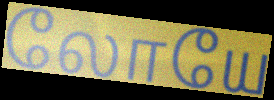
லோயே